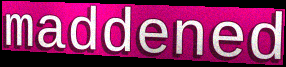
maddened